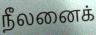
நீலனைக்